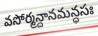
వసోర్మన్దానమన్ధసః